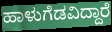
ಹಾಳುಗೆಡವಿದ್ದಾರೆ